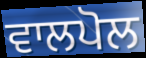
ਵਾਲਪੋਲ